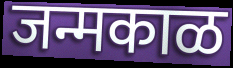
जन्मकाळ